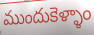
ముందుకెళ్ళాం